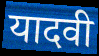
यादवी